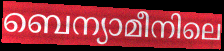
ബെന്യാമീനിലെ